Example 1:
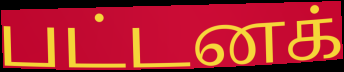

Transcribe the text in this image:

பட்டனக்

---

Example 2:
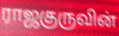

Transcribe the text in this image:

ராஜகுருவின்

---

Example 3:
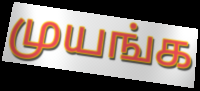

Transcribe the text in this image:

முயங்க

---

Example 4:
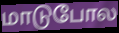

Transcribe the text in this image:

மாடுபோல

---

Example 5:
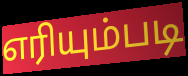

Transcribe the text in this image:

எரியும்படி